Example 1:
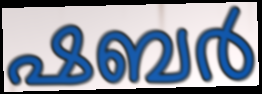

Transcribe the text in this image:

ഷബർ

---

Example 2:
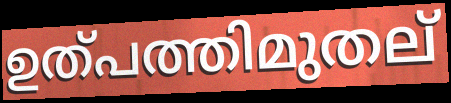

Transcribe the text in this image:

ഉത്പത്തിമുതല്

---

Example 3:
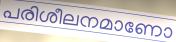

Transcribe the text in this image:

പരിശീലനമാണോ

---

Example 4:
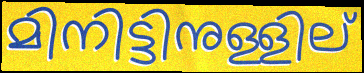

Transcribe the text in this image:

മിനിട്ടിനുള്ളില്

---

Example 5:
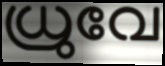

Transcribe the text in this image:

ധ്രുവേ